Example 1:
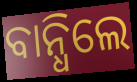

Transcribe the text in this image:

ବାନ୍ଧିଲେ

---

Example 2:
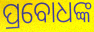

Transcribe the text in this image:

ପ୍ରବୋଧଙ୍କ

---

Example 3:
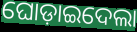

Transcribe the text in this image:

ଘୋଡ଼ାଇଦେଲା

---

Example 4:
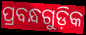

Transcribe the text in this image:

ପ୍ରବନ୍ଧଗୁଡ଼ିକ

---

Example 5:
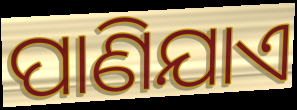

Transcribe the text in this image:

ପାଣିଯାଏ